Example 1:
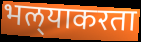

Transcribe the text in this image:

भल्याकरता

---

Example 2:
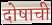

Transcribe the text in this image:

दोषाची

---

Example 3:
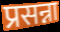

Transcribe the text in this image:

प्रसन्ना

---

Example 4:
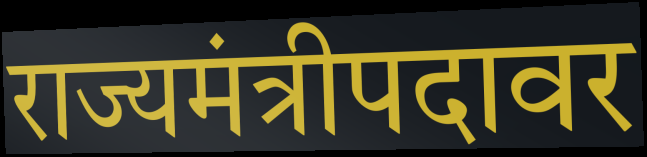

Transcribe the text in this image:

राज्यमंत्रीपदावर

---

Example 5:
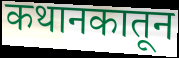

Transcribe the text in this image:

कथानकातून